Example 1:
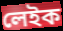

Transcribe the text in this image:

লেইক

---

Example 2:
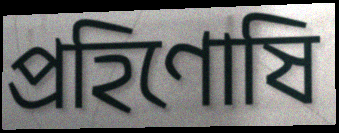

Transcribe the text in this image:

প্রহিণোষি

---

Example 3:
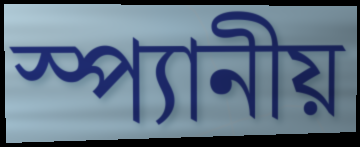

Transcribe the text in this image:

স্প্যানীয়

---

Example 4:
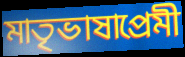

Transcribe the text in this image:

মাতৃভাষাপ্রেমী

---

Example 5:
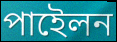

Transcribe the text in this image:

পাইেলন